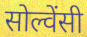
सोल्वेंसी